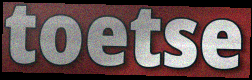
toetse